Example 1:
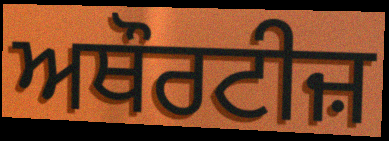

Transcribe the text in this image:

ਅਥੌਰਟੀਜ਼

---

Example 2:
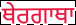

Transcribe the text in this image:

ਥੇਰਗਾਥਾ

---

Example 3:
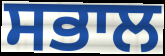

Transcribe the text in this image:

ਸਭਾਲ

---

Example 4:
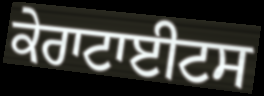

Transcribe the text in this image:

ਕੇਰਾਟਾਈਟਸ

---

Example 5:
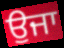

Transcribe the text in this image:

ਉਜਾ